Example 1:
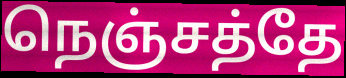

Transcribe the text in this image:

நெஞ்சத்தே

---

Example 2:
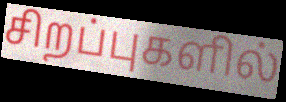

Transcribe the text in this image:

சிறப்புகளில்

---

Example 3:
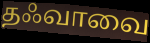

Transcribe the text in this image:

தஃவாவை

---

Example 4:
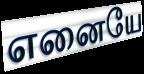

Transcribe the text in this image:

எனையே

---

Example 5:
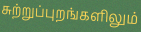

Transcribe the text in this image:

சுற்றுப்புறங்களிலும்